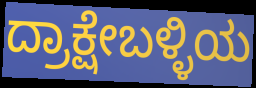
ದ್ರಾಕ್ಷೇಬಳ್ಳಿಯ